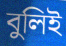
বুলিই